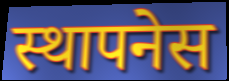
स्थापनेस